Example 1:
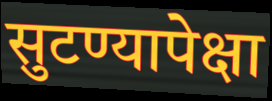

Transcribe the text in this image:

सुटण्यापेक्षा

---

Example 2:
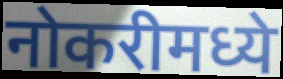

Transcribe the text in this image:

नोकरीमध्ये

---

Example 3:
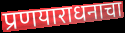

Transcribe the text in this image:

प्रणयाराधनाचा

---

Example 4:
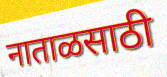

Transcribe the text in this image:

नाताळसाठी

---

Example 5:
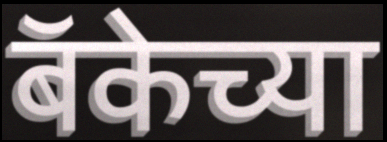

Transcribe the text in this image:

बॅकेच्या